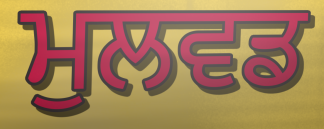
ਮੁਲਵਡ